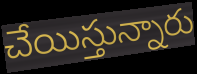
చేయిస్తున్నారు